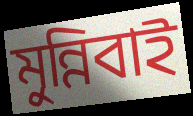
মুন্নিবাই